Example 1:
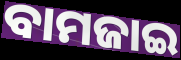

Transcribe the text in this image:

ବାମଜାଇ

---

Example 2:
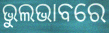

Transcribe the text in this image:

ଭୁଲଭାବରେ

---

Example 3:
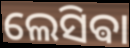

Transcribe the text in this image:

ଲେସିଵା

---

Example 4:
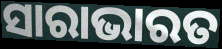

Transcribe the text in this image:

ସାରାଭାରତ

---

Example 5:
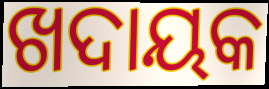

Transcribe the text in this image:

ଖଦାୟକ